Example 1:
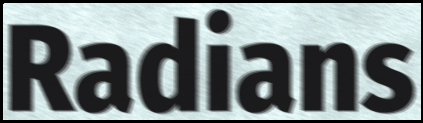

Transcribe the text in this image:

Radians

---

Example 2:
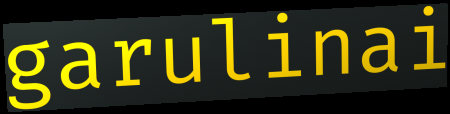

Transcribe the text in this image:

garulinai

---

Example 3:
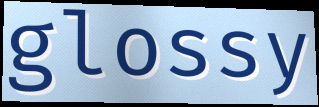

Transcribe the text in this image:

glossy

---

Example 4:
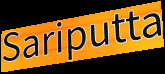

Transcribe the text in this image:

Sariputta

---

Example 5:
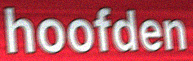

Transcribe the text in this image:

hoofden